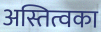
अस्तित्वका